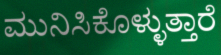
ಮುನಿಸಿಕೊಳ್ಳುತ್ತಾರೆ